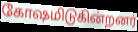
கோஷமிடுகின்றனர்